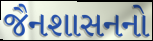
જૈનશાસનનો